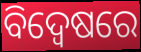
ବିଦ୍ୱେଷରେ